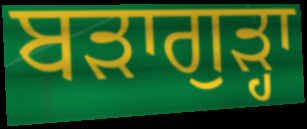
ਬੜਾਗੁੜ੍ਹਾ